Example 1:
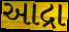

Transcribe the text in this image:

આદ્રા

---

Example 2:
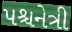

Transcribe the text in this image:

પશ્ચનેત્રી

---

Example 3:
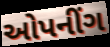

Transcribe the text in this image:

ઓપનીંગ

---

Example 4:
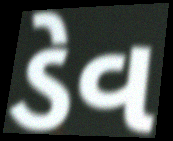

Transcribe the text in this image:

ડેવ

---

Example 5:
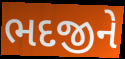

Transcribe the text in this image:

ભદજીને